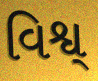
વિશ્વ્